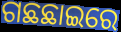
ଗଛଛାଇରେ